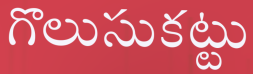
గొలుసుకట్టు